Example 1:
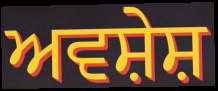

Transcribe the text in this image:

ਅਵਸ਼ੇਸ਼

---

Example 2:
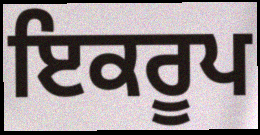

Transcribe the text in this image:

ਇਕਰੂਪ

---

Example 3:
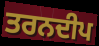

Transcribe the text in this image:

ਤਰਨਦੀਪ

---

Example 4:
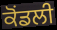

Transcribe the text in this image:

ਕੋਂਡਲੀ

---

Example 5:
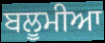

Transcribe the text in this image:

ਬਲੂਮੀਆ